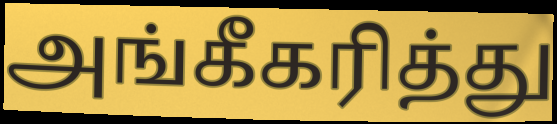
அங்கீகரித்து